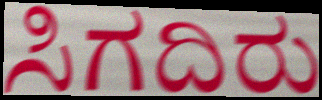
ಸಿಗದಿರು